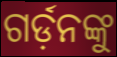
ଗର୍ଡ଼ନଙ୍କୁ